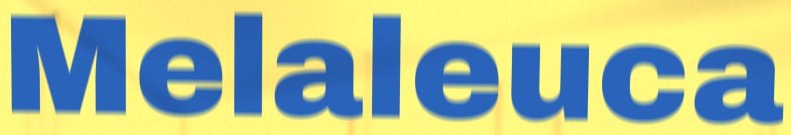
Melaleuca